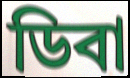
ডিবা